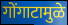
गोंगाटामुळे